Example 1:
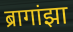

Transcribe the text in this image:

ब्रागांझा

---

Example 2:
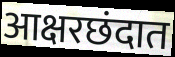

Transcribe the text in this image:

आक्षरछंदात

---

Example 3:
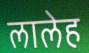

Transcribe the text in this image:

लालेह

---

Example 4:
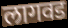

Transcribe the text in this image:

लागवड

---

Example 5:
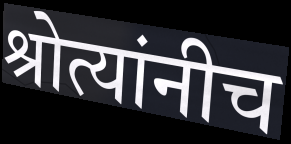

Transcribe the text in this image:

श्रोत्यांनीच